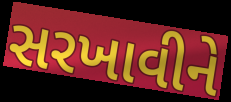
સરખાવીને